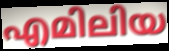
എമിലിയ